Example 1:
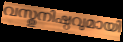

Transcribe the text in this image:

വസ്തുനിഷ്ഠവുമായി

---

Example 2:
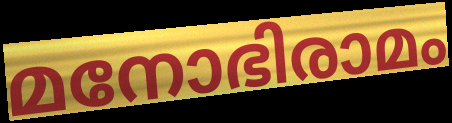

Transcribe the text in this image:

മനോഭിരാമം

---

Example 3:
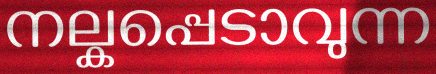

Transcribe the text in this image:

നല്കപ്പെടാവുന്ന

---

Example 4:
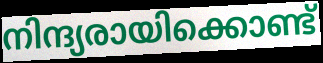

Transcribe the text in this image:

നിന്ദ്യരായിക്കൊണ്ട്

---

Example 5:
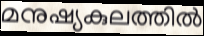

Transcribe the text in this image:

മനുഷ്യകുലത്തിൽ